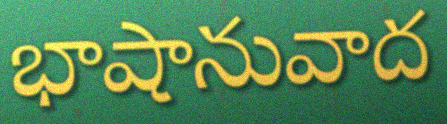
భాషానువాద